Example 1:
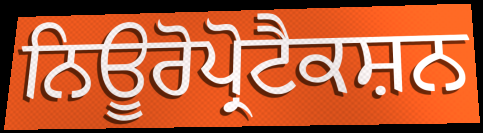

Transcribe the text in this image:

ਨਿਊਰੋਪ੍ਰੋਟੈਕਸ਼ਨ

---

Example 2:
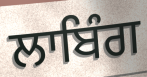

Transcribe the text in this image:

ਲਾਬਿੰਗ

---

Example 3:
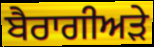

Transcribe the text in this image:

ਬੈਰਾਗੀਅੜੇ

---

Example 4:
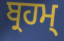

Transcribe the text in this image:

ਬ੍ਰਹਮ੍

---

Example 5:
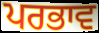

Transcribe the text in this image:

ਪਰਭਾਵ